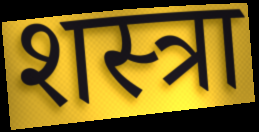
शस्त्रा